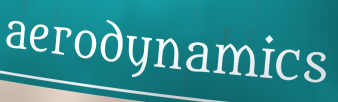
aerodynamics